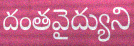
దంతవైద్యుని